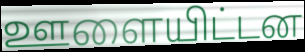
ஊளையிட்டன